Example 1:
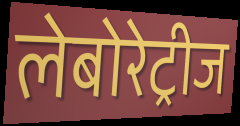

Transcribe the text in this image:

लेबोरेट्रीज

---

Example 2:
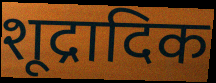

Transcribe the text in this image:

शूद्रादिक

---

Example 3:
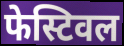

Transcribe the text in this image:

फेस्टिवल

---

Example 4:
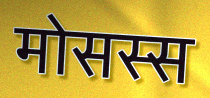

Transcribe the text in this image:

मोसस्स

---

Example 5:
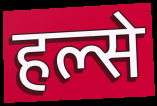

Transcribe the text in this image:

हल्से